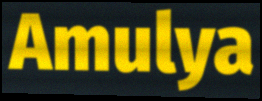
Amulya